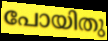
പോയിതു